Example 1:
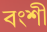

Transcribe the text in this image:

বংশী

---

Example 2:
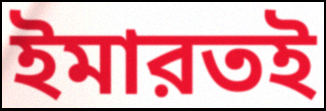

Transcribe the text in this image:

ইমারতই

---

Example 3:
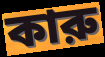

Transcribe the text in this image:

কারু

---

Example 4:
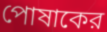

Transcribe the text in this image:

পোষাকের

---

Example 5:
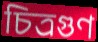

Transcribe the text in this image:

চিত্রগুণ